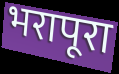
भरापूरा